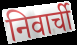
निवार्ची